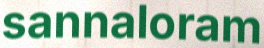
sannaloram